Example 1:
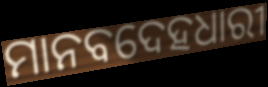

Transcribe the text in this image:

ମାନବଦେହଧାରୀ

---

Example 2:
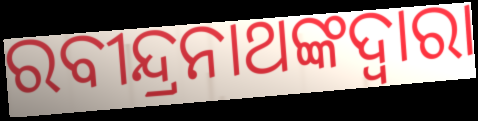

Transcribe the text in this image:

ରବୀନ୍ଦ୍ରନାଥଙ୍କଦ୍ୱାରା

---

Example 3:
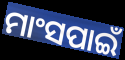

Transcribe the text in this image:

ମାଂସପାଇଁ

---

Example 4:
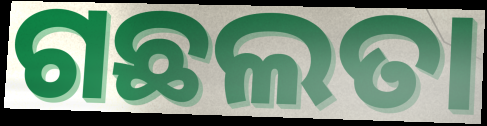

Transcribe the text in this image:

ଗଛଲତା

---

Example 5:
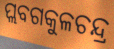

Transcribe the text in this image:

ପ୍ଲବଗକୁଳଚନ୍ଦ୍ର